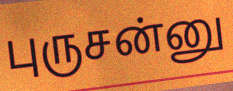
புருசன்னு